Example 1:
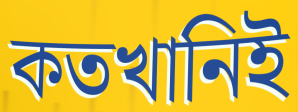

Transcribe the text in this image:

কতখানিই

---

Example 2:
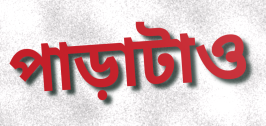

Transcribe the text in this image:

পাড়াটাও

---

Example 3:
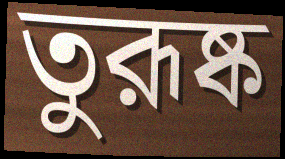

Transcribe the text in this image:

তুরূষ্ক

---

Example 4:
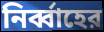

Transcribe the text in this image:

নির্ব্বাহের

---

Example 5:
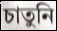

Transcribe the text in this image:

চাতুনি